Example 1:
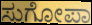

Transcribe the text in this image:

ಸುಗೋಪಾ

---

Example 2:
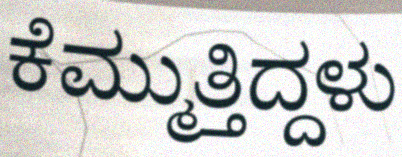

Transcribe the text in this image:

ಕೆಮ್ಮುತ್ತಿದ್ದಳು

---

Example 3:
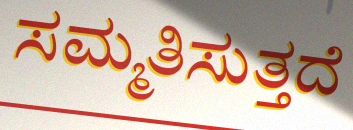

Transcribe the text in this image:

ಸಮ್ಮತಿಸುತ್ತದೆ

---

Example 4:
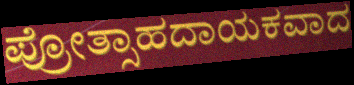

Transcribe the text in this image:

ಪ್ರೋತ್ಸಾಹದಾಯಕವಾದ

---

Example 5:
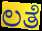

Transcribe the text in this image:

ಲತೆ